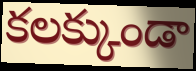
కలక్కుండా